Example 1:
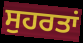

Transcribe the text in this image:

ਸੁਹਰਤਾਂ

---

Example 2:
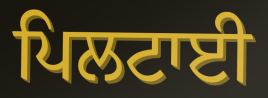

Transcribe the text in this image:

ਪਿਲਟਾਈ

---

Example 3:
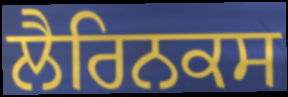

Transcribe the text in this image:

ਲੈਰਿਨਕਸ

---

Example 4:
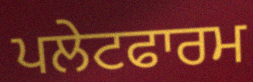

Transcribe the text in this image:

ਪਲੇਟਫਾਰਮ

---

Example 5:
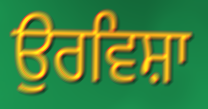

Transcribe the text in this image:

ਉਰਵਿਸ਼ਾ